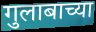
गुलाबाच्या